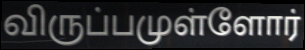
விருப்பமுள்ளோர்